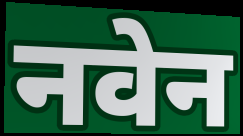
नवेन